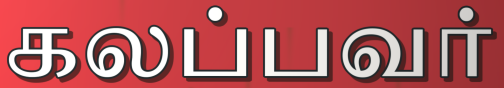
கலப்பவர்